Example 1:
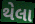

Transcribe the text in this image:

થેલા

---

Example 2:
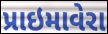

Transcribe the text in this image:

પ્રાઇમાવેરા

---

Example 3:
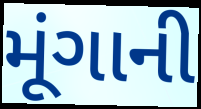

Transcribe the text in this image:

મૂંગાની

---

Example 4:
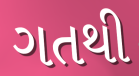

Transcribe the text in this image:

ગતથી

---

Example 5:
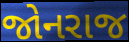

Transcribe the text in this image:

જોનરાજ